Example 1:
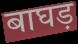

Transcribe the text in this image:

बाघड़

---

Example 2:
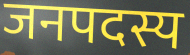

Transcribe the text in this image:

जनपदस्य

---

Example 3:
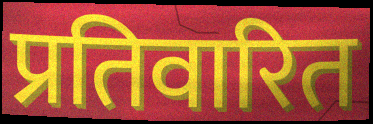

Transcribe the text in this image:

प्रतिवारित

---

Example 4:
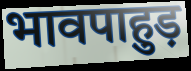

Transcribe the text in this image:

भावपाहुड़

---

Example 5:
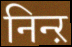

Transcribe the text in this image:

निन्ऱ